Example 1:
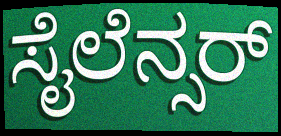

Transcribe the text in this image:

ಸೈಲೆನ್ಸರ್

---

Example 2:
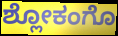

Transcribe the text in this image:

ಶ್ಲೋಕಂಗೊ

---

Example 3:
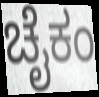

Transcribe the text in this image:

ಚೈಕಂ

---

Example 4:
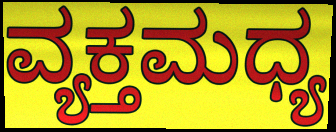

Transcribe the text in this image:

ವ್ಯಕ್ತಮಧ್ಯ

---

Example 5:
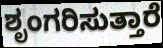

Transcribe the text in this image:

ಶೃಂಗರಿಸುತ್ತಾರೆ